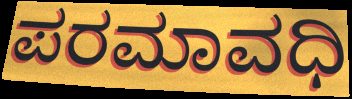
ಪರಮಾವಧಿ